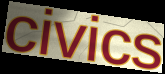
civics